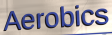
Aerobics